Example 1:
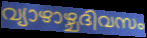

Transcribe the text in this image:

വ്യാഴാഴ്ചദിവസം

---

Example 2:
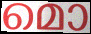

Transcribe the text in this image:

മൊ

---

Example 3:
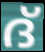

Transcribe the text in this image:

ദ്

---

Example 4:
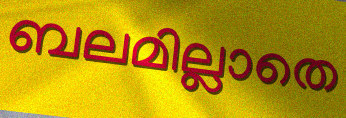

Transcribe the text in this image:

ബലമില്ലാതെ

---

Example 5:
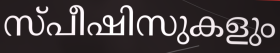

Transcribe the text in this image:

സ്പീഷിസുകളും